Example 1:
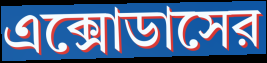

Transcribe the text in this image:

এক্সোডাসের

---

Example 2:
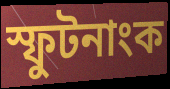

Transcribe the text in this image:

স্ফুটনাংক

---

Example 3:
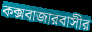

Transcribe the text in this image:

কক্সবাজারবাসীর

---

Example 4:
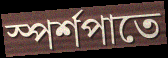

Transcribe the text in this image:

স্পর্শপাতে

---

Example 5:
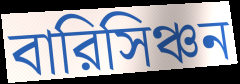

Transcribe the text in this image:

বারিসিঞ্চন